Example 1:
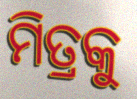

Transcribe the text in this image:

ମିତ୍ରକୁ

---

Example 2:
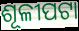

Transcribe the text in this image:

ଶୂଳୀପଟା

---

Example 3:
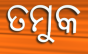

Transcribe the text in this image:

ତମୁକ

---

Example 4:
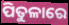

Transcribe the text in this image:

ପିତୁଳାରେ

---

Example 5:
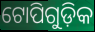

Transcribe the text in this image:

ଟୋପିଗୁଡ଼ିକ